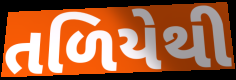
તળિયેથી